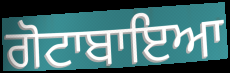
ਗੋਟਾਬਾਇਆ